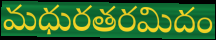
మధురతరమిదం